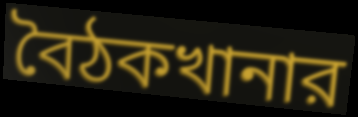
বৈঠকখানার